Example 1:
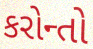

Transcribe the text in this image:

કરોન્તો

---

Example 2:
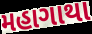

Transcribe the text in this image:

મહાગાથા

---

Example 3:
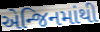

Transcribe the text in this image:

એન્જિનમાંથી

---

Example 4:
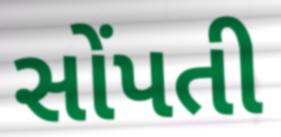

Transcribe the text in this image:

સોંપતી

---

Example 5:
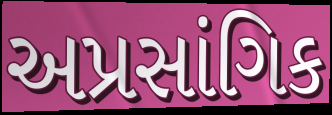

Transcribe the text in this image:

અપ્રસાંગિક